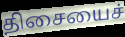
திசையைச்